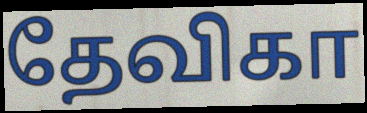
தேவிகா